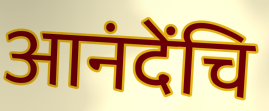
आनंदेंचि